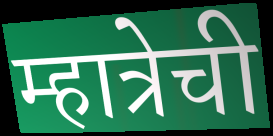
म्हात्रेची